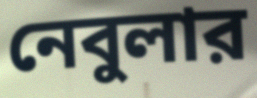
নেবুলার